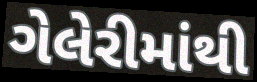
ગેલેરીમાંથી